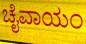
ಚೈವಾಯಂ